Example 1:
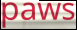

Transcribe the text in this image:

paws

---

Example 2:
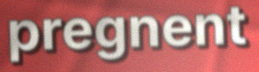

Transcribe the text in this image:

pregnent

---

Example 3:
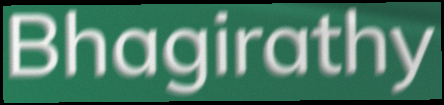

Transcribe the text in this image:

Bhagirathy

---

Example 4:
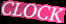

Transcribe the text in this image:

CLOCK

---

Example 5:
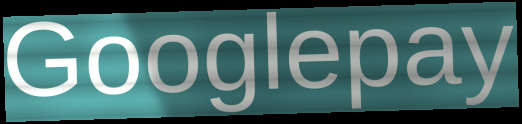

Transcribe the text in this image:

Googlepay